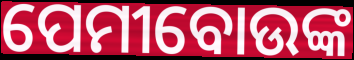
ପେମୀବୋଉଙ୍କ